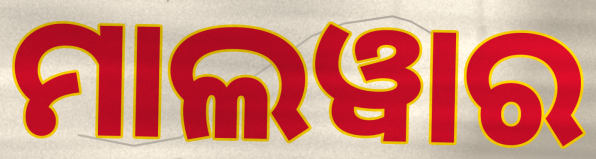
ମାଲୱାର